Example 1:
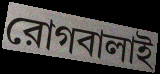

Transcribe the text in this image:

রোগবালাই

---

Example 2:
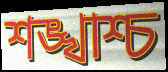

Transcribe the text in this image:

শঙ্খাশ্চ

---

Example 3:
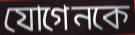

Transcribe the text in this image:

যোগেনকে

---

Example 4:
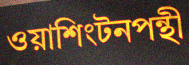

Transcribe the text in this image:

ওয়াশিংটনপন্থী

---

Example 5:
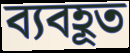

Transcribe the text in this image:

ব্যবহূত